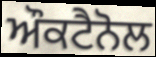
ਔਕਟੈਨੋਲ